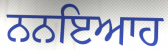
ਨਨਇਆਹ